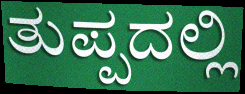
ತುಪ್ಪದಲ್ಲಿ